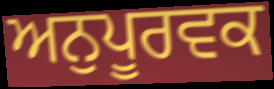
ਅਨੁਪੂਰਵਕ